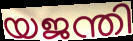
യജന്തി